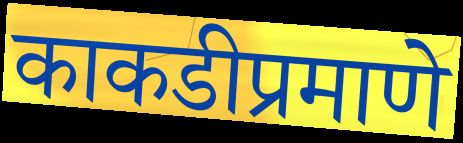
काकडीप्रमाणे